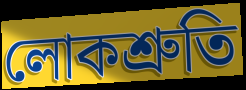
লোকশ্ৰুতি